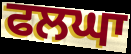
ਫਲਘਾ